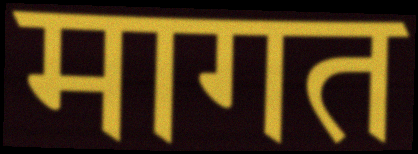
मागत